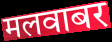
मलवाबर